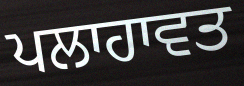
ਪਲਾਹਾਵਤ